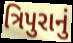
ત્રિપુરાનું